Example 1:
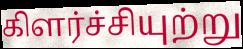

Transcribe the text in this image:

கிளர்ச்சியுற்று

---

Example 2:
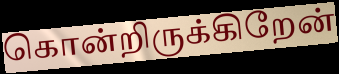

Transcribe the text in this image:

கொன்றிருக்கிறேன்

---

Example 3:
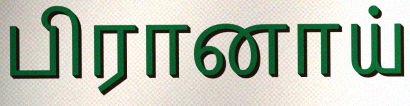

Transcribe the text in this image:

பிரானாய்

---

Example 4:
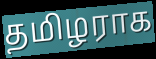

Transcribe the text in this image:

தமிழராக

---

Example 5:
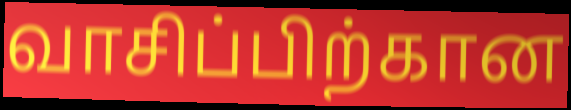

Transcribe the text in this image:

வாசிப்பிற்கான